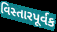
વિસ્તારપૂર્વક